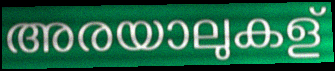
അരയാലുകള്